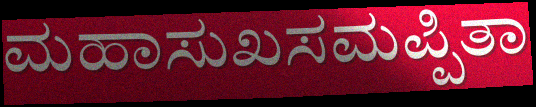
ಮಹಾಸುಖಸಮಪ್ಪಿತಾ